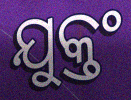
ଯୁକ୍ତଂ